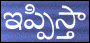
ఇప్పిస్తా